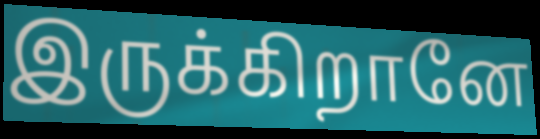
இருக்கிறானே